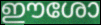
ഈശോ